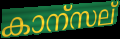
കാന്സല്